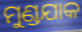
ମୁଣ୍ଡଯାକ